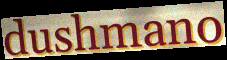
dushmano